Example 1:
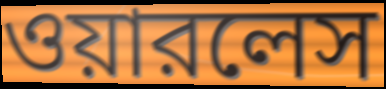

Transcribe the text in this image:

ওয়ারলেস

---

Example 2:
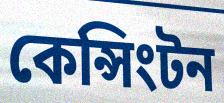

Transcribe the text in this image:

কেন্সিংটন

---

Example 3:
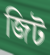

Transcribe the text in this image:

জিট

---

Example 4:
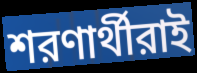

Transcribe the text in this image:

শরণার্থীরাই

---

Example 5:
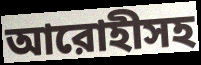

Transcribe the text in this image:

আরোহীসহ